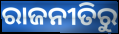
ରାଜନୀତିରୁ